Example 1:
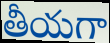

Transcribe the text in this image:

తీయగా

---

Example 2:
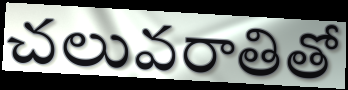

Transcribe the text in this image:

చలువరాతితో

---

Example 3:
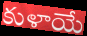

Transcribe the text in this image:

కుళాయే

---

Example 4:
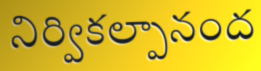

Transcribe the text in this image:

నిర్వికల్పానంద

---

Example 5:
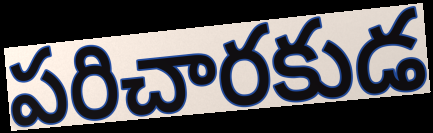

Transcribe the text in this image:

పరిచారకుడ